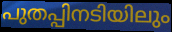
പുതപ്പിനടിയിലും